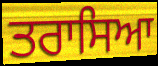
ਤਰਾਸਿਆ